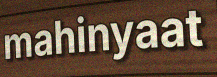
mahinyaat